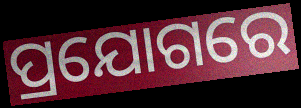
ପ୍ରଯୋଗରେ